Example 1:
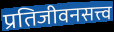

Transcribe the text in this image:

प्रतिजीवनसत्त्व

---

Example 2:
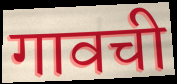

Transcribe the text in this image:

गावची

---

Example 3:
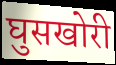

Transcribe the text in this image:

घुसखोरी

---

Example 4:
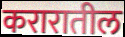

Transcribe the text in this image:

करारातील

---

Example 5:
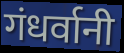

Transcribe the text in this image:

गंधर्वानी